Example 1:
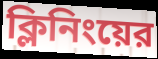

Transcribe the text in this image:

ক্লিনিংয়ের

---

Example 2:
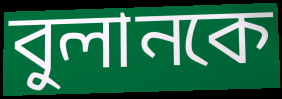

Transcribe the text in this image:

বুলানকে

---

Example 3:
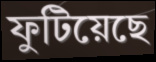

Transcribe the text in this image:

ফুটিয়েছে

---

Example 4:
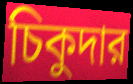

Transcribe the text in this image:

চিকুদার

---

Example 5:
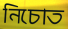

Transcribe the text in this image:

নিচোত